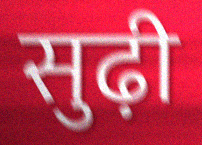
सुढ़ी